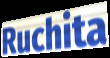
Ruchita